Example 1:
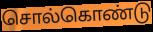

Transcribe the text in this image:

சொல்கொண்டு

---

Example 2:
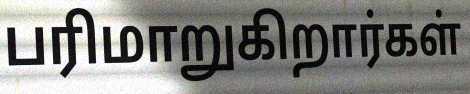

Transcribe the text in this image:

பரிமாறுகிறார்கள்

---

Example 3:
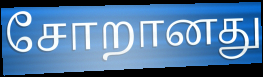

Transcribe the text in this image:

சோறானது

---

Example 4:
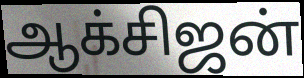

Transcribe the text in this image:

ஆக்சிஜன்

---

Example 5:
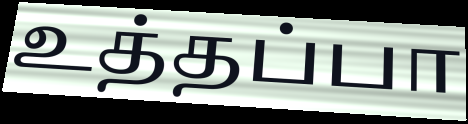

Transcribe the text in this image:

உத்தப்பா